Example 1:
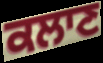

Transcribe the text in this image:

ਕਲਾਣ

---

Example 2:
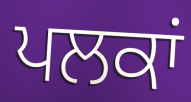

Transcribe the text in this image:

ਪਲਕਾਂ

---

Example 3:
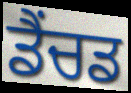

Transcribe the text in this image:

ਡੈਂਚਡ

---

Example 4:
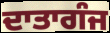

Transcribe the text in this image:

ਦਾਤਾਗੰਜ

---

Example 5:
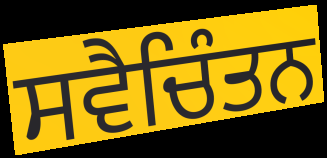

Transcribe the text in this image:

ਸਵੈਚਿੰਤਨ